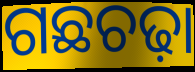
ଗଛଚଢ଼ା